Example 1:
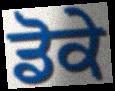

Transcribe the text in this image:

ਡੋਕੇ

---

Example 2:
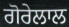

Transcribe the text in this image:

ਗੋਰੇਲਾਲ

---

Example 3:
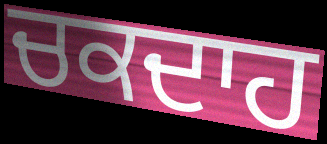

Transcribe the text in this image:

ਚਕਦਾਹ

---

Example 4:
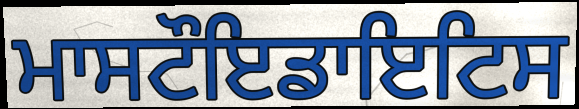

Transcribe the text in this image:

ਮਾਸਟੌਇਡਾਇਟਿਸ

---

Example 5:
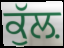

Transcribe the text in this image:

ਕੁੱਲ਼